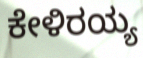
ಕೇಳಿರಯ್ಯ